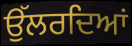
ਉੱਲਰਦਿਆਂ